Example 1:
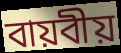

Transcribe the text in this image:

বায়বীয়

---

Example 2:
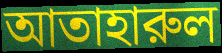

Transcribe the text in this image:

আতাহারুল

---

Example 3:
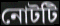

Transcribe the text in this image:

নোটটি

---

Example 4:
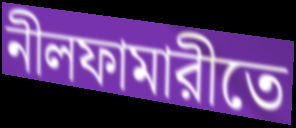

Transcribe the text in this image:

নীলফামারীতে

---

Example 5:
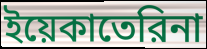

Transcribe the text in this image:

ইয়েকাতেরিনা